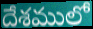
దేశములో